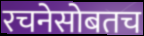
रचनेसोबतच